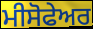
ਮੀਸੋਫੇਅਰ